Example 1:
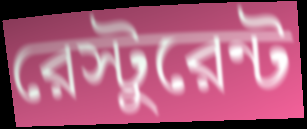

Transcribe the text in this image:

রেস্টুরেন্ট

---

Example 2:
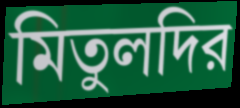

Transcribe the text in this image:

মিতুলদির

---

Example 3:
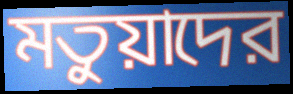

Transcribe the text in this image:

মতুয়াদের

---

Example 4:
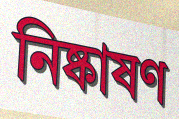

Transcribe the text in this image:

নিষ্কাষণ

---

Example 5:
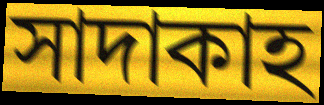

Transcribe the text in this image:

সাদাকাহ